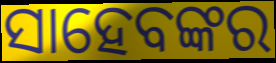
ସାହେବଙ୍କର